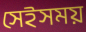
সেইসময়